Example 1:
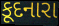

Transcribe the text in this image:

કૂદનારા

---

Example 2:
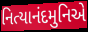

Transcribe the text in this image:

નિત્યાનંદમુનિએ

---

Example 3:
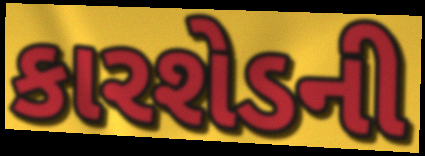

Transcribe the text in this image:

કારશેડની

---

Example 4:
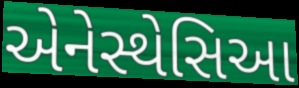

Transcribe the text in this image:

એનેસ્થેસિઆ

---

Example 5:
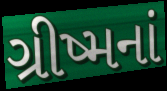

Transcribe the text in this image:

ગ્રીષ્મનાં